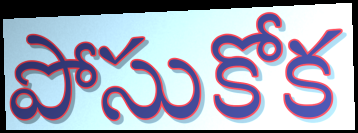
పోసుకోక